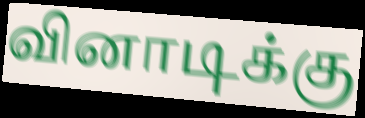
வினாடிக்கு